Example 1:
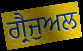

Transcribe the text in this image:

ਗ੍ਰੈਜੁਅਲ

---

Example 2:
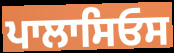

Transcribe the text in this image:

ਪਾਲਾਸਿਓਸ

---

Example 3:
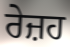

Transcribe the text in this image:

ਰੇਜ਼ਹ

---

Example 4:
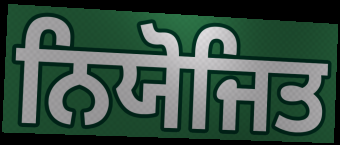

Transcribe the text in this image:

ਨਿਯੋਜਿਤ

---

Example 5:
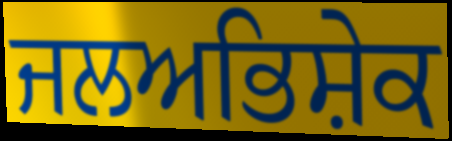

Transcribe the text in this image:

ਜਲਅਭਿਸ਼ੇਕ